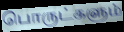
பொருட்களும்